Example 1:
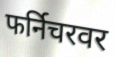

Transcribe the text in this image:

फर्निचरवर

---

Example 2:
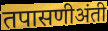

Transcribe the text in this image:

तपासणीअंती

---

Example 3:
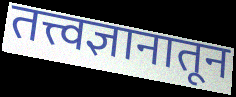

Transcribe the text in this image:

तत्त्वज्ञानातून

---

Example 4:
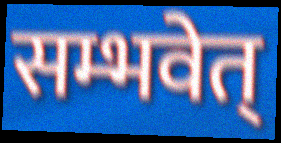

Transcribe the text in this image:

सम्भवेत्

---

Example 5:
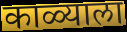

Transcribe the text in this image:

काळ्याला